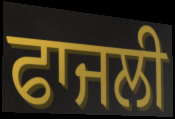
ਫਾਜਲੀ